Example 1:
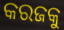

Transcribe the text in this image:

କରଜକୁ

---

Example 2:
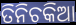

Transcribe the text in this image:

ତିନିଚକିଆ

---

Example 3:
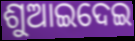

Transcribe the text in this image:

ଶୁଆଇଦେଇ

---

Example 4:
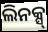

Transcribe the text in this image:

ଲିନକ୍ସ୍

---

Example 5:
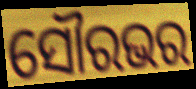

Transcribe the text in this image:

ସୌରଭର